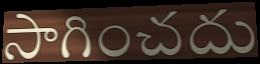
సాగించదు